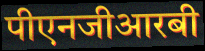
पीएनजीआरबी